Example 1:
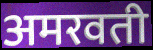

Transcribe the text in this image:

अमरवती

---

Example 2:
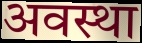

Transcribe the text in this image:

अवस्‍था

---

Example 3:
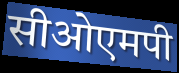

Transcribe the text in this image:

सीओएमपी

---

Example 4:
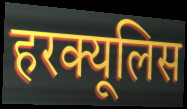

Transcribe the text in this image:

हरक्यूलिस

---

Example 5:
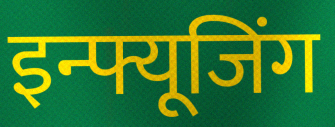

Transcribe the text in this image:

इन्फ्यूजिंग